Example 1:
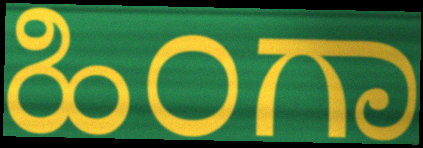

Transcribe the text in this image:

ಹಿಂಗಾ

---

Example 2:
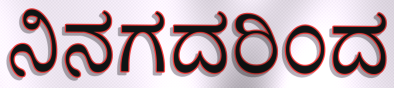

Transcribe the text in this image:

ನಿನಗದರಿಂದ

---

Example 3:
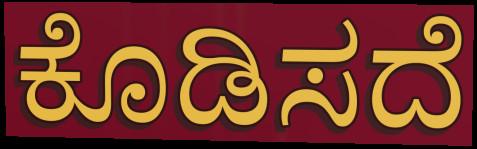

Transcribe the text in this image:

ಕೊಡಿಸದೆ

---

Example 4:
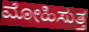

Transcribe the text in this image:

ಮೋಹಿಸುತ್ತ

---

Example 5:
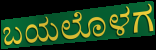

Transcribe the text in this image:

ಬಯಲೊಳಗ